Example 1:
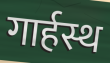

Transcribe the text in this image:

गार्हस्थ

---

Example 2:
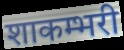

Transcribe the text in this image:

शाकम्भरी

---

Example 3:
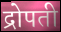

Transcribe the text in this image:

द्रोपती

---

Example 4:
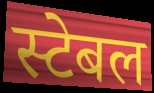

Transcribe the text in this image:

स्टेबल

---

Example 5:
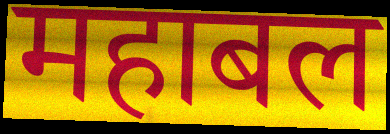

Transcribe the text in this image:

महाबल